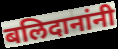
बलिदानांनी